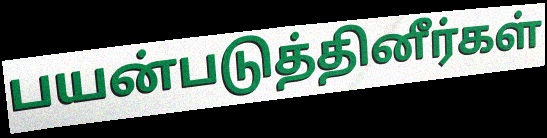
பயன்படுத்தினீர்கள்